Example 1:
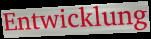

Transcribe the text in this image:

Entwicklung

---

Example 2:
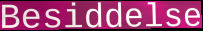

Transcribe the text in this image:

Besiddelse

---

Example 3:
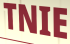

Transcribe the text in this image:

TNIE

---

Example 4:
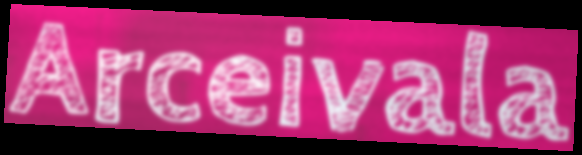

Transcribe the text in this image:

Arceivala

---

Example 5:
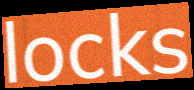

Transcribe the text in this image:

locks